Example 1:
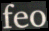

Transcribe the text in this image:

feo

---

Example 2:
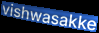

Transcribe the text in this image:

vishwasakke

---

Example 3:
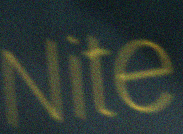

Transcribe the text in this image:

Nite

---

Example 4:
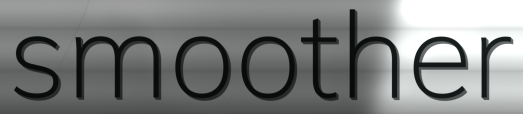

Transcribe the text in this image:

smoother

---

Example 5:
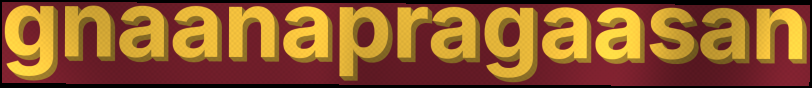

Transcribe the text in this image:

gnaanapragaasan